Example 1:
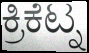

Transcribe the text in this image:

ಕ್ರಿಕೆಟ್ನ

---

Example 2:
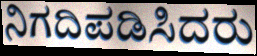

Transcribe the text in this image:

ನಿಗದಿಪಡಿಸಿದರು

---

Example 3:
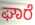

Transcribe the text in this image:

ಘಾರೆ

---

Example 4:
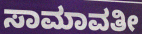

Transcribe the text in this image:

ಸಾಮಾವತೀ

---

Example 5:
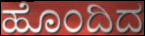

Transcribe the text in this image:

ಹೊಂದಿದ